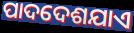
ପାଦଦେଶଯାଏ